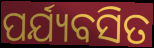
ପର୍ଯ୍ୟବସିତ